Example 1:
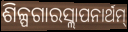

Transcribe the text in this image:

ଶିଳ୍ପଗାରସ୍ଲାପନାର୍ଥମ୍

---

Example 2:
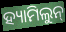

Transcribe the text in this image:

ହ୍ୟାମିଲୁନ୍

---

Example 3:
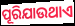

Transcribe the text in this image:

ପୂରିଯାଉଥାଏ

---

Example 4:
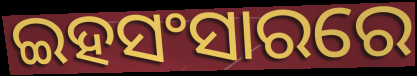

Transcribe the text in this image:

ଇହସଂସାରରେ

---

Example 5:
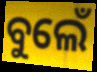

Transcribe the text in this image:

ବୁଲେଁ